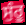
ਸੁੰਰੂ